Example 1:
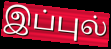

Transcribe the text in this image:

இப்புல்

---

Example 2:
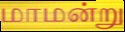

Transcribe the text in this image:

மாமன்று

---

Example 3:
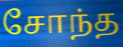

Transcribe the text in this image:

சோந்த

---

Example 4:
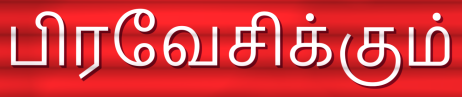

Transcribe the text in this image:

பிரவேசிக்கும்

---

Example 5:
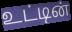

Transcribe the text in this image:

உட்டின்